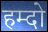
हम्दो